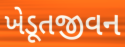
ખેડૂતજીવન